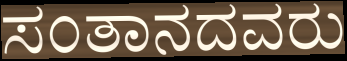
ಸಂತಾನದವರು